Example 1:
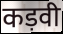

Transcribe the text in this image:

कड़वी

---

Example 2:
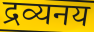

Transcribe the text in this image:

द्रव्यनय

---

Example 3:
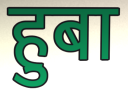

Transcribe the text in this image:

हुबा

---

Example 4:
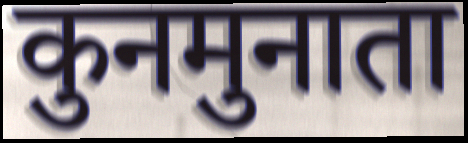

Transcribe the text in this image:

कुनमुनाता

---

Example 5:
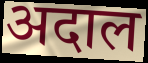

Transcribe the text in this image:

अदाल